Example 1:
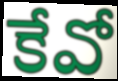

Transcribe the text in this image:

కేవో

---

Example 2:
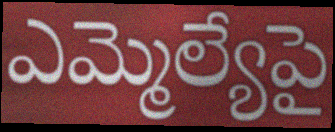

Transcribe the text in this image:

ఎమ్మెల్యేపై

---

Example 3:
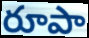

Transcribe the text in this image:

రూపా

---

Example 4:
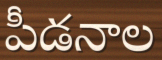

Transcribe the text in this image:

పీడనాల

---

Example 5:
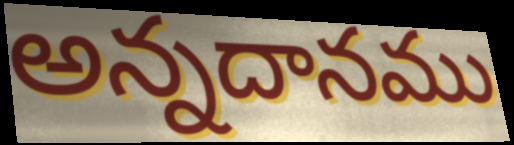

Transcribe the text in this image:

అన్నదానము